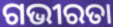
ଗଭୀରତା